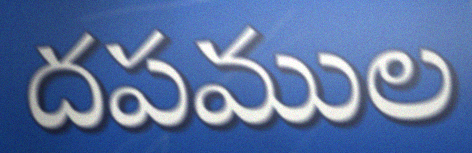
దపముల